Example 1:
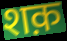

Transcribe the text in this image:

शक़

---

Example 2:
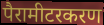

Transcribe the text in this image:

पैरामीटरकरण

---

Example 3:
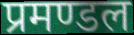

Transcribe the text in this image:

प्रमण्डल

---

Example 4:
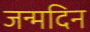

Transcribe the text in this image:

जन्मदिन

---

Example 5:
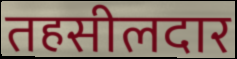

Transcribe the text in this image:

तहसीलदार